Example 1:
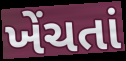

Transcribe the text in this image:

ખેંચતાં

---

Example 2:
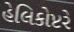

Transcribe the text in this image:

હેલિકોપ્ટરે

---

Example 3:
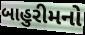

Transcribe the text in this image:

બાહુરીમનો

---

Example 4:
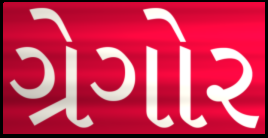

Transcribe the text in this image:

ગ્રેગોર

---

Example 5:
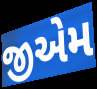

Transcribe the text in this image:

જીએમ